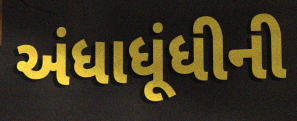
અંધાધૂંધીની